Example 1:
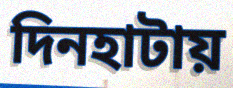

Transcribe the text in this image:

দিনহাটায়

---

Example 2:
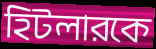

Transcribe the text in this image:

হিটলারকে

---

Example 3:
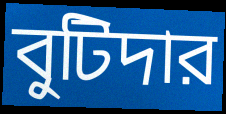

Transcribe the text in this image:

বুটিদার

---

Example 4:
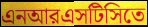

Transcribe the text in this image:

এনআরএসটিসিতে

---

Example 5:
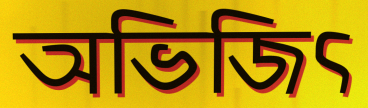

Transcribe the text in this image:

অভিজিৎ